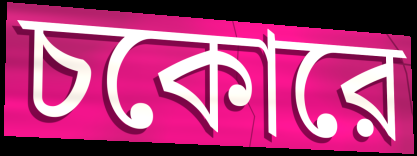
চকোরে